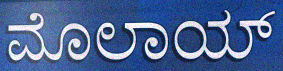
ಮೊಲಾಯ್